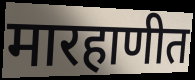
मारहाणीत